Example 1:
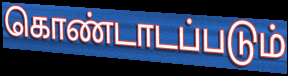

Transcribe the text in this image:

கொண்டாடப்படும்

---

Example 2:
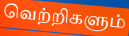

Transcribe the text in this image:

வெற்றிகளும்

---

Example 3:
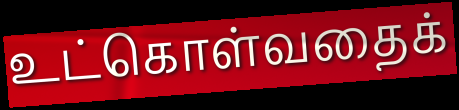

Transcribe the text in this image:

உட்கொள்வதைக்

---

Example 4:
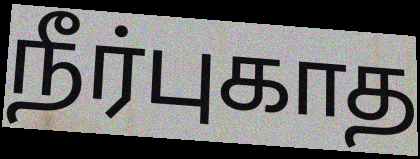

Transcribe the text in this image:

நீர்புகாத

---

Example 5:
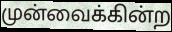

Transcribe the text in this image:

முன்வைக்கின்ற